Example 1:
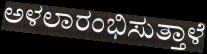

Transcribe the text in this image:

ಅಳಲಾರಂಭಿಸುತ್ತಾಳೆ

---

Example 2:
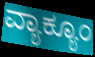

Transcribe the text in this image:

ವ್ಯಾಕ್ಯೂಂ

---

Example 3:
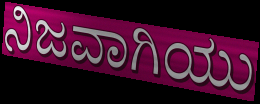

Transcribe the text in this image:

ನಿಜವಾಗಿಯು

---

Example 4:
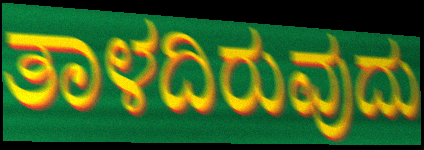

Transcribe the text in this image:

ತಾಳದಿರುವುದು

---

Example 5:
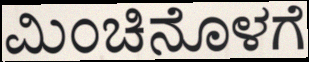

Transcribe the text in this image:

ಮಿಂಚಿನೊಳಗೆ